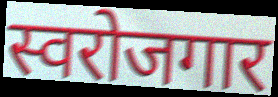
स्वरोजगार